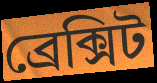
ব্রেক্সিট